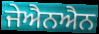
ਜੇਐਨਐਨ